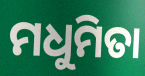
ମଧୁମିତା